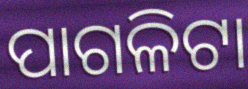
ପାଗଳିଟା